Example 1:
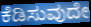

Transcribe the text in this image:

ಕೆಡಿಸುವುದೇ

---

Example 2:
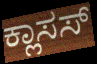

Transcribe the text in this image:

ಕ್ಲಾಸಸ್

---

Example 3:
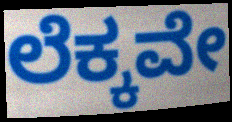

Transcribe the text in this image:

ಲೆಕ್ಕವೇ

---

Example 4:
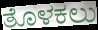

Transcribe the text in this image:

ತೊಳಕಲು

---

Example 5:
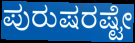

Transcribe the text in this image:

ಪುರುಷರಷ್ಟೇ